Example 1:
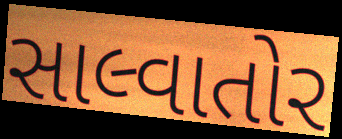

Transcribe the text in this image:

સાલ્વાતોર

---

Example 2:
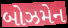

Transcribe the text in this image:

બોઝમેન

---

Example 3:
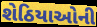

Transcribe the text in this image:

શેઠિયાઓની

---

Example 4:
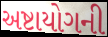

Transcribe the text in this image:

અષ્ટાયોગની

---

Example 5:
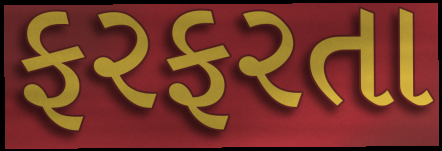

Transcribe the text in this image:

ફરફરતા